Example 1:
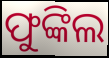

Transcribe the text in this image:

ଫୁଙ୍କିଲ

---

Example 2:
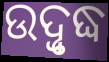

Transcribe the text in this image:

ଉଦ୍ବୃଦ୍ଧ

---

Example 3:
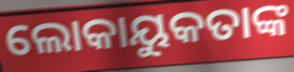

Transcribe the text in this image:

ଲୋକାୟୁକତାଙ୍କ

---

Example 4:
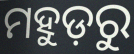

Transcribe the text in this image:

ମହୁଡ଼ରୁ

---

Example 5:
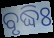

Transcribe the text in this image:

ବୃଦ୍ଧିଃ